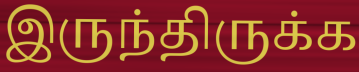
இருந்திருக்க